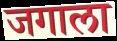
जगाला